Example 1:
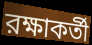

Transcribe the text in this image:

রক্ষাকর্তী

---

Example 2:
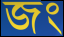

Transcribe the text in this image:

জং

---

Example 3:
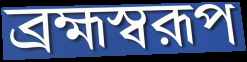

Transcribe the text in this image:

ব্রহ্মস্বরূপ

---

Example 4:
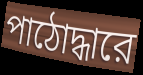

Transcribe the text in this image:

পাঠোদ্ধারে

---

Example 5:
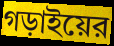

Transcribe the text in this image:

গড়াইয়ের